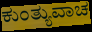
ಕುಂತ್ಯುವಾಚ